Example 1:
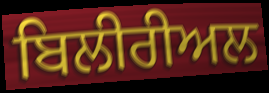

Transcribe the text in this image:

ਬਿਲੀਰੀਅਲ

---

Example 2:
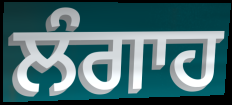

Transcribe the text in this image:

ਲੰਗਾਹ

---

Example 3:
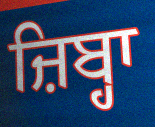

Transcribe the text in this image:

ਜ਼ਿਬ੍ਹਾ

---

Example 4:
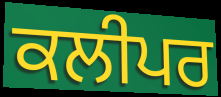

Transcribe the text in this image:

ਕਲੀਪਰ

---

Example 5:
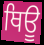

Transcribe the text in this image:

ਥਿਊ